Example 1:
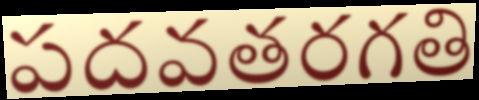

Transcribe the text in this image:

పదవతరగతి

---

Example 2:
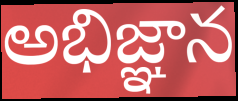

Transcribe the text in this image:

అభిజ్ఞాన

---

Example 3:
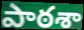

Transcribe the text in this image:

పాఠశా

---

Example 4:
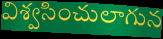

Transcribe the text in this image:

విశ్వసించులాగున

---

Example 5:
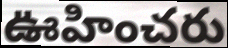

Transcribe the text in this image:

ఊహించరు